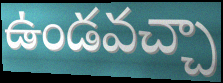
ఉండవచ్చా